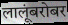
लालूंबरोबर